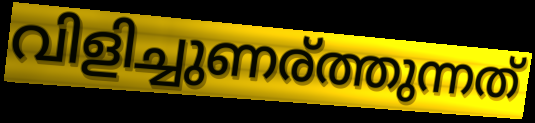
വിളിച്ചുണര്ത്തുന്നത്